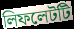
লিফলেটটি